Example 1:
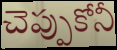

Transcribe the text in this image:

చెప్పుకోనీ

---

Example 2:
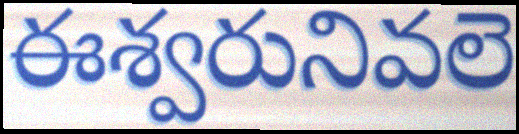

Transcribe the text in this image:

ఈశ్వరునివలె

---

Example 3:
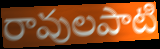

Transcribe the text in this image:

రావులపాటి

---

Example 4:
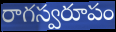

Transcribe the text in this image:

రాగస్వరూపం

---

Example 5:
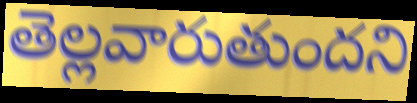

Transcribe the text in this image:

తెల్లవారుతుందని